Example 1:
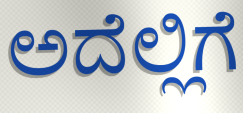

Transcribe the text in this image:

ಅದೆಲ್ಲಿಗೆ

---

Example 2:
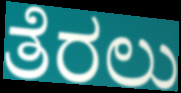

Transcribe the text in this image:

ತೆರಲು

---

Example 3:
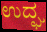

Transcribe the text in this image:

ಉದ್ಘ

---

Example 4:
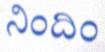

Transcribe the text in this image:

ನಿಂದಿಂ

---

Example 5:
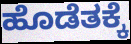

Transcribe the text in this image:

ಹೊಡೆತಕ್ಕೆ